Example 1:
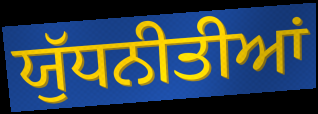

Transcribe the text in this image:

ਯੁੱਧਨੀਤੀਆਂ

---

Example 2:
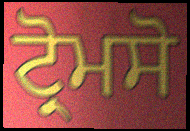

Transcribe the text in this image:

ਟ੍ਰੋਮਸੋ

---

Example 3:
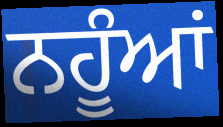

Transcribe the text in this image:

ਨਹੂੰਆਂ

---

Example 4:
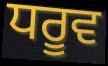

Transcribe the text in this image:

ਧਰੂਵ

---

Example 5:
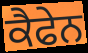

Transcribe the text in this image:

ਕੈਫੇਨ